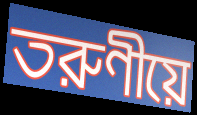
তৰুণীয়ে